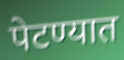
पेटण्यात